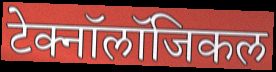
टेक्नॉलॉजिकल